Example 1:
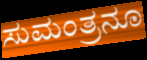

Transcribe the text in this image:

ಸುಮಂತ್ರನೂ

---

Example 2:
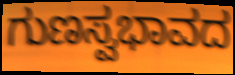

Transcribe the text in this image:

ಗುಣಸ್ವಭಾವದ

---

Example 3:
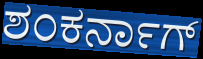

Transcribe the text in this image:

ಶಂಕರ್ನಾಗ್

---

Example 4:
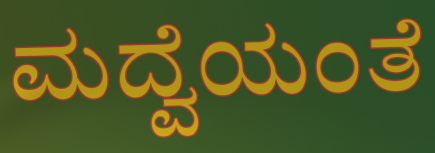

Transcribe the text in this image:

ಮದ್ವೆಯಂತೆ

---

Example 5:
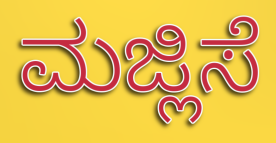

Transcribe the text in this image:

ಮಜ್ಲಿಸೆ